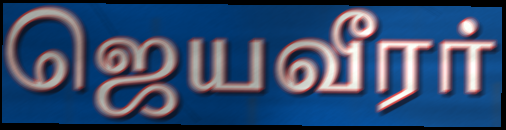
ஜெயவீரர்